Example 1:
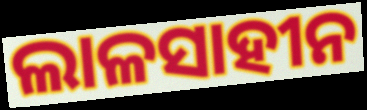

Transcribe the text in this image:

ଲାଳସାହୀନ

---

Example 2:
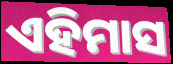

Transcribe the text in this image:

ଏହିମାସ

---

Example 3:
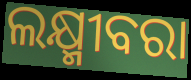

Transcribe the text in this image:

ଲକ୍ଷ୍ମୀବରା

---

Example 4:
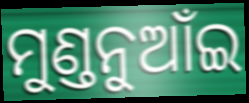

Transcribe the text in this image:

ମୁଣ୍ଡନୁଆଁଇ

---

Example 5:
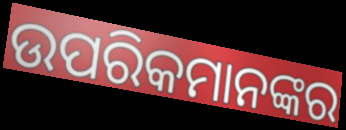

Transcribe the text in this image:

ଉପରିକମାନଙ୍କର